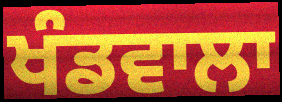
ਖੰਡਵਾਲਾ